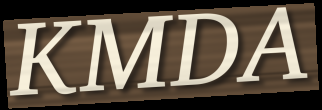
KMDA